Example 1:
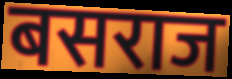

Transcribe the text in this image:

बसराज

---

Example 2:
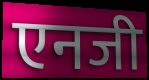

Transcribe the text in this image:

एनजी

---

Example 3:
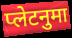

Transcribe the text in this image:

प्लेटनुमा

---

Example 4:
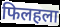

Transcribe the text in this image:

फिलहला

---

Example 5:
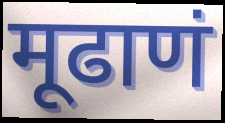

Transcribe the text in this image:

मूढाणं